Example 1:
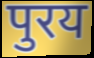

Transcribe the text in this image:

पुरय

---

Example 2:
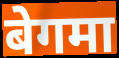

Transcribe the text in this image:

बेगमा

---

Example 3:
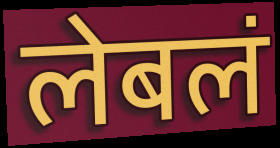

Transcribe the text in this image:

लेबलं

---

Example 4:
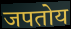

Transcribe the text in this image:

जपतोय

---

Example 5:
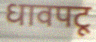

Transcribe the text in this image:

धावपटू